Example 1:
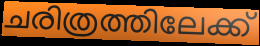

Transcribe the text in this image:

ചരിത്രത്തിലേക്ക്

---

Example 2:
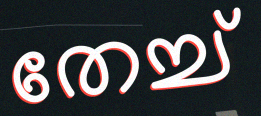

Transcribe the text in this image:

തേച്ച്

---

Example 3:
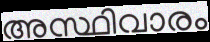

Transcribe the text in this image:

അസ്ഥിവാരം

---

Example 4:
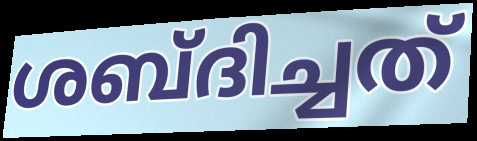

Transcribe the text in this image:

ശബ്ദിച്ചത്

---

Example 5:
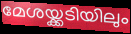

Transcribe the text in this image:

മേശയ്ക്കടിയിലും